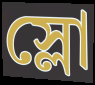
স্লো